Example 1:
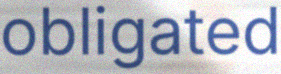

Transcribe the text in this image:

obligated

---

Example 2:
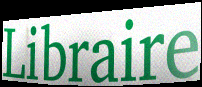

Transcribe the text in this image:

Libraire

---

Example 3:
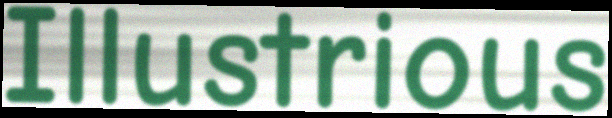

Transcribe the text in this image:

Illustrious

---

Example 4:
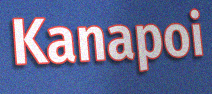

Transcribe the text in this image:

Kanapoi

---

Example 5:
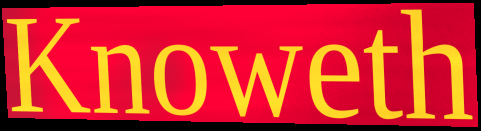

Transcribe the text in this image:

Knoweth